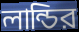
লান্ডির